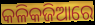
କଳିକଜିଆରେ